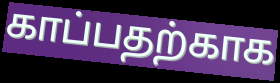
காப்பதற்காக